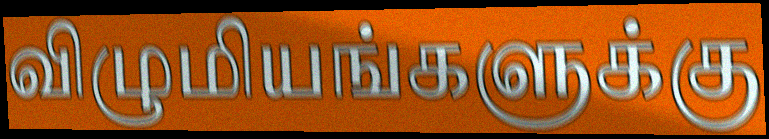
விழுமியங்களுக்கு